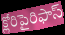
క్లోరిపైరిఫాస్